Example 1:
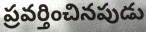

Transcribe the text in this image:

ప్రవర్తించినపుడు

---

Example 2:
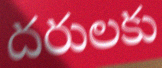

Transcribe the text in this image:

దరులకు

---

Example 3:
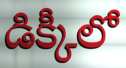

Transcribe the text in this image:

డిక్కీలో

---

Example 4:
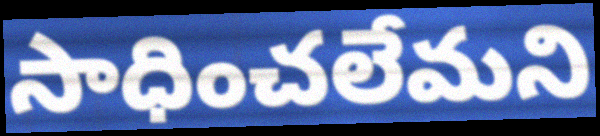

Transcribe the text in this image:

సాధించలేమని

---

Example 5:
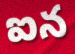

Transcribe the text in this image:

ఐన